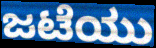
ಜಟೆಯು